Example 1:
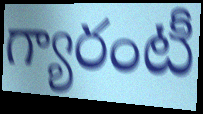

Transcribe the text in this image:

గ్యారంటీ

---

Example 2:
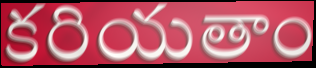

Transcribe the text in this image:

కరియతాం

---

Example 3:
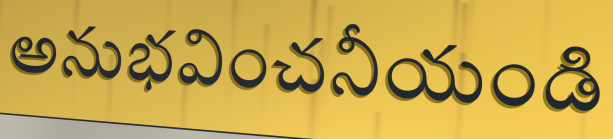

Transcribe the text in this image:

అనుభవించనీయండి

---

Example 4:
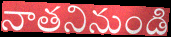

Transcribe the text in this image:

నాతనినుండి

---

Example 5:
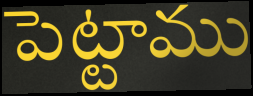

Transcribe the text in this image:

పెట్టాము